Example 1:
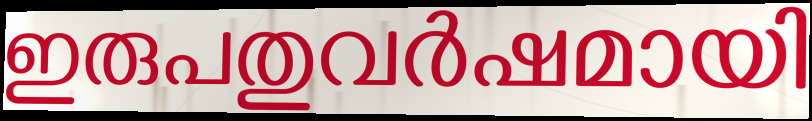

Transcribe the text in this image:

ഇരുപതുവർഷമായി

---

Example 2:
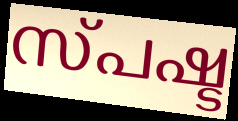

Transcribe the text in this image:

സ്‌പഷ്ട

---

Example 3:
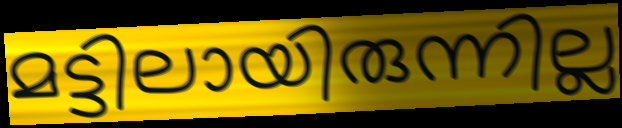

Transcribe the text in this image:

മട്ടിലായിരുന്നില്ല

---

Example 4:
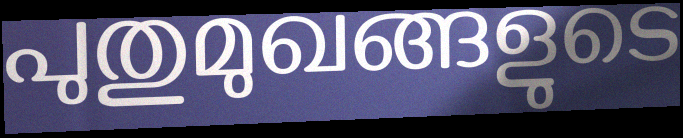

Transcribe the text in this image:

പുതുമുഖങ്ങളുടെ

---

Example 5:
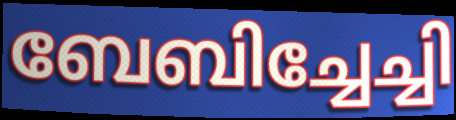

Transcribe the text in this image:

ബേബിച്ചേച്ചി